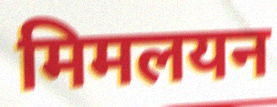
मिमलयन